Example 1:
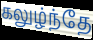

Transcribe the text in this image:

கலுழ்ந்தே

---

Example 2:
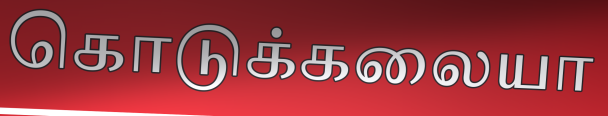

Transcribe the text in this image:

கொடுக்கலையா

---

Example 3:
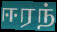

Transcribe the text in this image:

ஈரந்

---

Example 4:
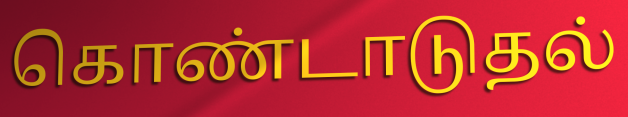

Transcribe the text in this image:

கொண்டாடுதல்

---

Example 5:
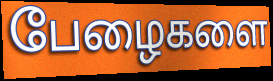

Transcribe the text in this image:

பேழைகளை